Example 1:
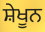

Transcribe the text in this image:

ਸ਼ੇਖੂਨ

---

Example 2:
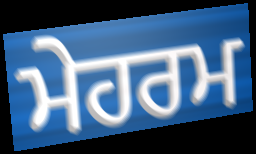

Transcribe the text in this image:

ਮੇਹਰਮ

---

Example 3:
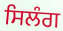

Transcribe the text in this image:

ਸਿਲੰਗ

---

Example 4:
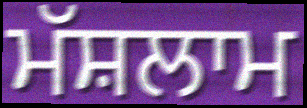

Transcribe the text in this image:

ਮੱਸ਼ਲਾਮ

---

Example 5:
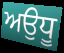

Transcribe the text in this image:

ਅਉਧੂ